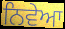
ਨਿਵੇਆ